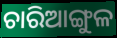
ଚାରିଆଙ୍ଗୁଳ